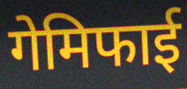
गेमिफाई